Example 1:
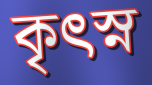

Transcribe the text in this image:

কৃৎস্ন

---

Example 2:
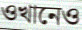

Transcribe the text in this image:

ওখানেও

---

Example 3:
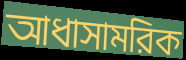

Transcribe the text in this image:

আধাসামরিক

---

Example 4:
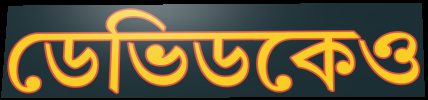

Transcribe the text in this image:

ডেভিডকেও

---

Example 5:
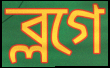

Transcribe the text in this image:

ব্লগে